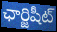
ఛార్జిషీట్